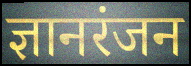
ज्ञानरंजन